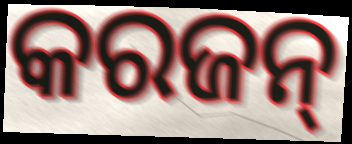
କରଜନ୍